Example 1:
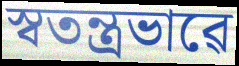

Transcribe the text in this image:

স্বতন্ত্ৰভাৱে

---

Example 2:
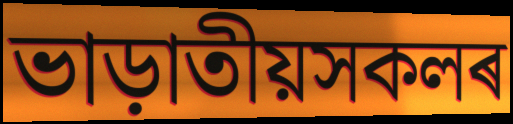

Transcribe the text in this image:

ভাড়াতীয়সকলৰ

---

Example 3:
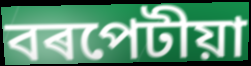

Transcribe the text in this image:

বৰপেটীয়া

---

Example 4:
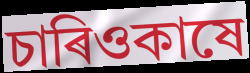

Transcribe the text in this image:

চাৰিওকাষে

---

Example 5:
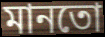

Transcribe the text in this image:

মানতো